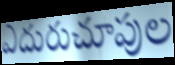
ఎదురుచూపుల